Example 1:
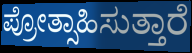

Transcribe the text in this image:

ಪ್ರೋತ್ಸಾಹಿಸುತ್ತಾರೆ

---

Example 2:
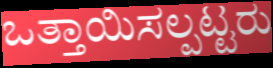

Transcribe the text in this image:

ಒತ್ತಾಯಿಸಲ್ಪಟ್ಟರು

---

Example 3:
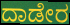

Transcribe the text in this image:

ದಾಡೇರ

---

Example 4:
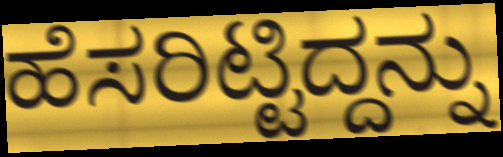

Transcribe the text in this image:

ಹೆಸರಿಟ್ಟಿದ್ದನ್ನು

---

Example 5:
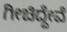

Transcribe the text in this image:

ಗೀಚಿದ್ದೇವೆ